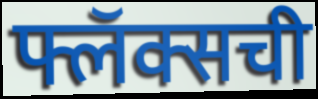
फ्लॅक्सची